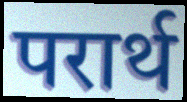
परार्थ